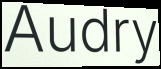
Audry